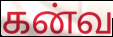
கன்வ